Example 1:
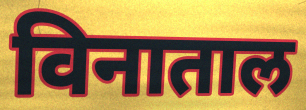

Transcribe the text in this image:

विनाताल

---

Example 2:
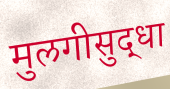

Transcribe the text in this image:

मुलगीसुद्धा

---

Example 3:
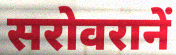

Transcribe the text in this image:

सरोवरानें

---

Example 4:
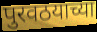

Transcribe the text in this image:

पुरवठयाच्या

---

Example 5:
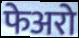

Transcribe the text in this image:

फेअरो